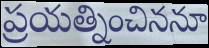
ప్రయత్నించిననూ